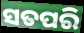
ସତପରି